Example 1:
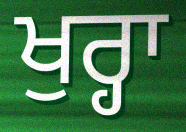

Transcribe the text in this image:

ਖੁਰ੍ਹਾ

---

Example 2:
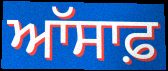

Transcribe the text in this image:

ਆੱਸਾਫ਼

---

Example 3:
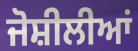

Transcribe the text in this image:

ਜੋਸ਼ੀਲੀਆਂ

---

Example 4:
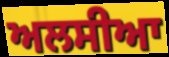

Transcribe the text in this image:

ਅਲਸੀਆ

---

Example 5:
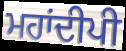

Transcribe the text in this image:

ਮਹਾਂਦੀਪੀ